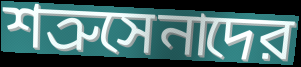
শত্রুসেনাদের